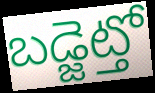
బడ్జెట్తో